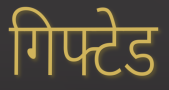
गिफ्टेड